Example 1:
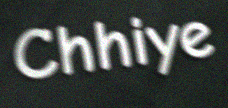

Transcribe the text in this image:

Chhiye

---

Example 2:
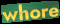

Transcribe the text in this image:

whore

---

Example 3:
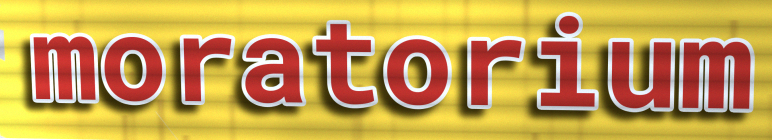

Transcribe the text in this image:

moratorium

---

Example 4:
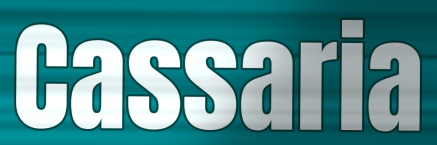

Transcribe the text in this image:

Cassaria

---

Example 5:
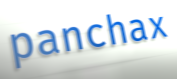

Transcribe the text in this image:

panchax